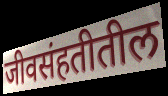
जीवसंहतीतील